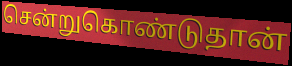
சென்றுகொண்டுதான்